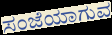
ಸಂಜೆಯಾಗುವ